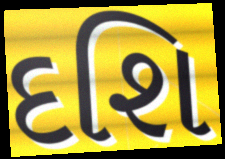
દશિ